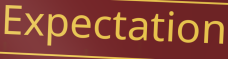
Expectation